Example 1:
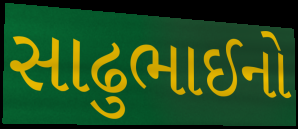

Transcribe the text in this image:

સાઢુભાઈનો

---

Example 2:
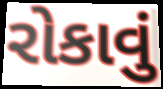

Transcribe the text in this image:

રોકાવું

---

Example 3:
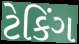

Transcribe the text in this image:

ટેકિંગ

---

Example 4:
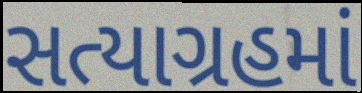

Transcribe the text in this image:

સત્યાગ્રહમાં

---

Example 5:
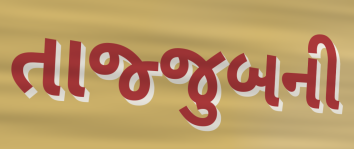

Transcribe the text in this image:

તાજ્જુબની